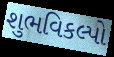
શુભવિકલ્પો